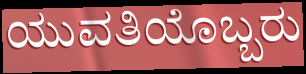
ಯುವತಿಯೊಬ್ಬರು